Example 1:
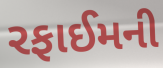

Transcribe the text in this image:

રફાઈમની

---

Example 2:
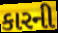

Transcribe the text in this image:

કારની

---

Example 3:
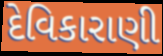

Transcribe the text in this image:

દેવિકારાણી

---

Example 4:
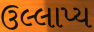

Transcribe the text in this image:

ઉલ્લાપ્ય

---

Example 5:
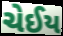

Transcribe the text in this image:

ચેઈય